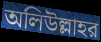
অলিউল্লাহর